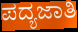
ಪದ್ಯಜಾತಿ